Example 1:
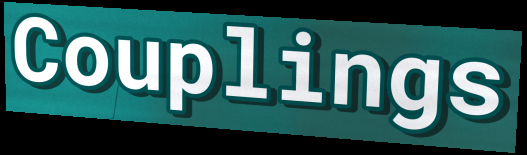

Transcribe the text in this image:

Couplings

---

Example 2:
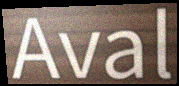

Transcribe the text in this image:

Aval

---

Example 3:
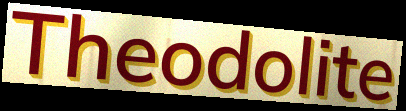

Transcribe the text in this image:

Theodolite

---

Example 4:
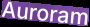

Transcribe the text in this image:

Auroram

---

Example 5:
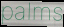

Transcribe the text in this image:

palms